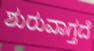
ಶುರುವಾಗ್ತದೆ